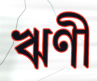
ঋণী